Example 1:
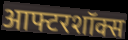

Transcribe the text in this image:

आफ्टरशॉक्स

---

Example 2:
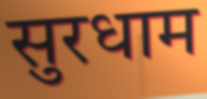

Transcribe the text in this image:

सुरधाम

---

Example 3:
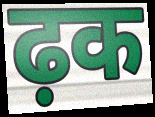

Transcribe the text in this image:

ढ़क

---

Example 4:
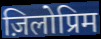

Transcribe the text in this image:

ज़िलोप्रिम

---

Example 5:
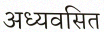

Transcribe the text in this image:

अध्यवसित